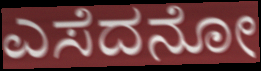
ಎಸೆದನೋ